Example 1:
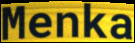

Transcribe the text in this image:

Menka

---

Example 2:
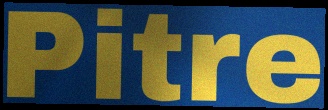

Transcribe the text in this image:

Pitre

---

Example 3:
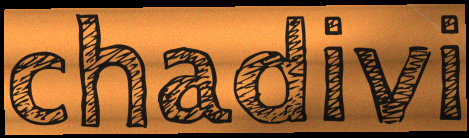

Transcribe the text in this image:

chadivi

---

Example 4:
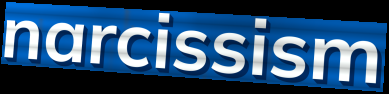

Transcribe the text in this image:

narcissism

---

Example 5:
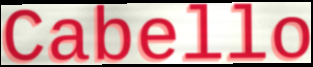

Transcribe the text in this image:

Cabello